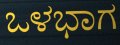
ಒಳಭಾಗ